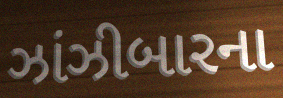
ઝાંઝીબારના